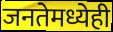
जनतेमध्येही